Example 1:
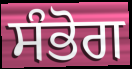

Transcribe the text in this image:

ਸੰਭੋਗ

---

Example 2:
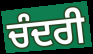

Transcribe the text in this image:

ਚੰਦਰੀ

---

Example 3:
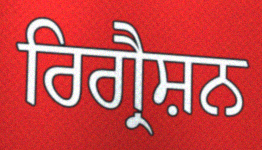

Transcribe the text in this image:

ਰਿਗ੍ਰੈਸ਼ਨ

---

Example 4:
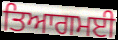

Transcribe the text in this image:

ਤਿਆਗਮਈ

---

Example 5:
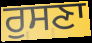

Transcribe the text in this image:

ਰੁਸਣਾ